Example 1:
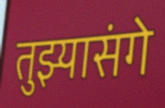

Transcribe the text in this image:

तुझ्यासंगे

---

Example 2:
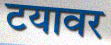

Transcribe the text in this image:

टयावर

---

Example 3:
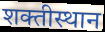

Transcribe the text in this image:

शक्तीस्थान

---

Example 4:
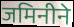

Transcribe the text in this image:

जमिनीने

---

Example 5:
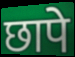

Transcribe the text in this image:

छापे